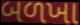
બળખા